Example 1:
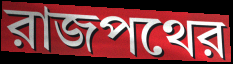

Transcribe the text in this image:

রাজপথের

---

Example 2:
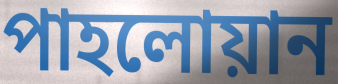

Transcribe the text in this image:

পাহলোয়ান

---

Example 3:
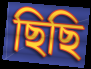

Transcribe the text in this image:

ছিছি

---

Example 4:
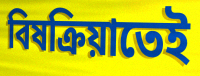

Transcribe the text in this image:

বিষক্রিয়াতেই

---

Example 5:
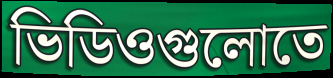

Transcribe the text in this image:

ভিডিওগুলোতে